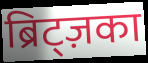
ब्रिट्ज़का